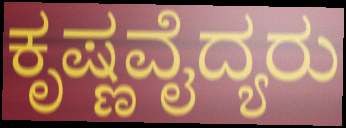
ಕೃಷ್ಣವೈದ್ಯರು